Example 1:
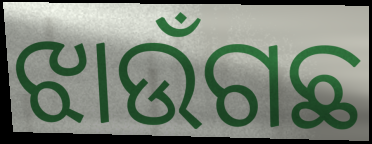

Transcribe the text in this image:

ଝାଉଁଗଛ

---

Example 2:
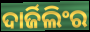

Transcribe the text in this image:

ଦାର୍ଜିଲିଂର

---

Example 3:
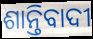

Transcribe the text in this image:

ଶାନ୍ତିବାଦୀ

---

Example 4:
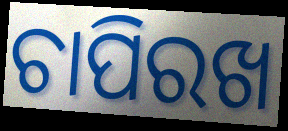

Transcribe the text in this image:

ଚାପିରଖ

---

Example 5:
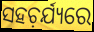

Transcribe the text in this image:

ସହଚ଼ର୍ଯ୍ୟରେ